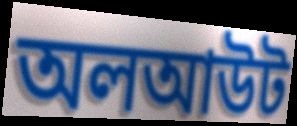
অলআউট